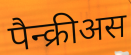
पैन्क्रीअस